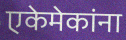
एकेमेकांना